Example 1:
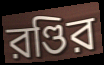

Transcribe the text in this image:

রণ্ডির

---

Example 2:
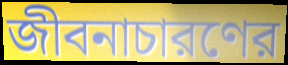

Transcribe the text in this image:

জীবনাচারণের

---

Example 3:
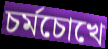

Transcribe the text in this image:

চর্মচোখে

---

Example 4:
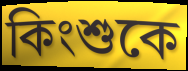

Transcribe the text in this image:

কিংশুকে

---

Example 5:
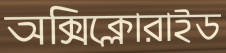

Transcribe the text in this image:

অক্সিক্লোরাইড